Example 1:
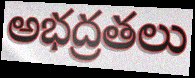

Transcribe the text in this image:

అభద్రతలు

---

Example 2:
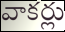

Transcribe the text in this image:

వాకర్లు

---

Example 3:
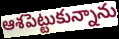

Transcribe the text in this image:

ఆశపెట్టుకున్నాను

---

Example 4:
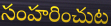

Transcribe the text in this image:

సంహరించుట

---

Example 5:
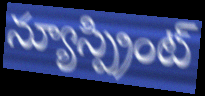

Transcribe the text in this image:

న్యూస్ప్రింట్